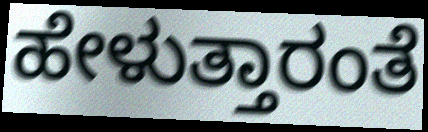
ಹೇಳುತ್ತಾರಂತೆ